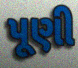
પૂણી